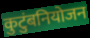
कुटुंबनियोजन